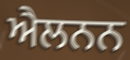
ਐਲਨਨ